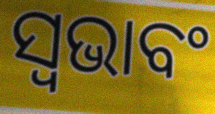
ସ୍ଵଭାବଂ